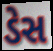
ડેસ